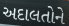
અદાલતોને